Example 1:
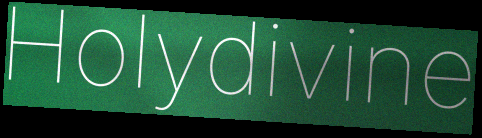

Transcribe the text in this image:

Holydivine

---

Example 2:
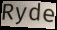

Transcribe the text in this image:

Ryde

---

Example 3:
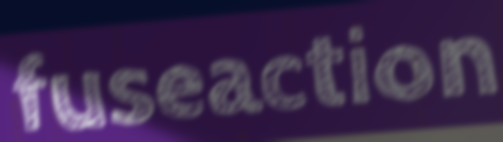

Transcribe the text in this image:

fuseaction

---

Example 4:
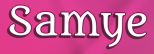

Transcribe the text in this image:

Samye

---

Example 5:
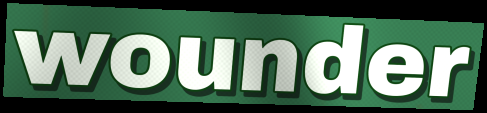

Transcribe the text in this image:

wounder